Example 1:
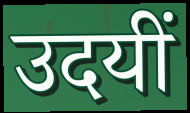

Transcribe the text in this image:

उदयीं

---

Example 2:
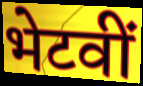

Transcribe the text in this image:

भेटवीं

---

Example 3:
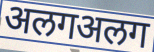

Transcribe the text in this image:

अलगअलग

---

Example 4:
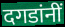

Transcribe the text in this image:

दगडांनीं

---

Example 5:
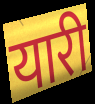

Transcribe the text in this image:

यारी